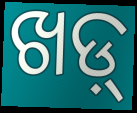
ଖଡ଼୍